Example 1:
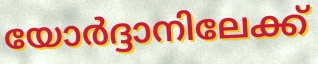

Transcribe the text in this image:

യോർദ്ദാനിലേക്ക്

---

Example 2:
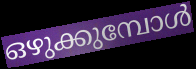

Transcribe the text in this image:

ഒഴുക്കുമ്പോൾ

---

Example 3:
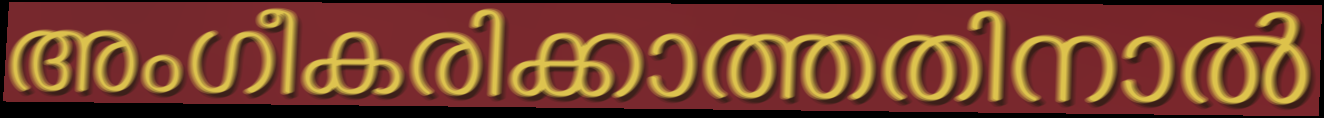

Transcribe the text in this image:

അംഗീകരിക്കാത്തതിനാൽ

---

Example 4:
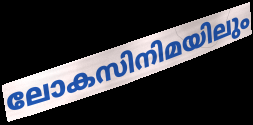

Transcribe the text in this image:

ലോകസിനിമയിലും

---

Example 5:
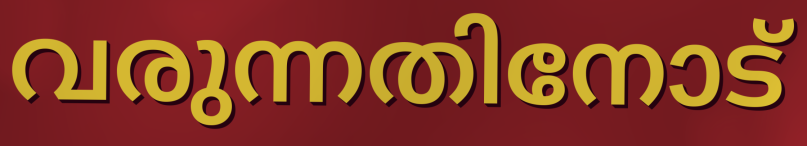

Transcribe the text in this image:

വരുന്നതിനോട്